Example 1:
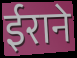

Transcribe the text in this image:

ईराने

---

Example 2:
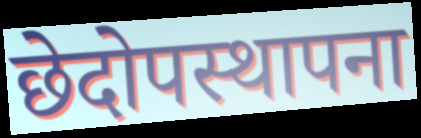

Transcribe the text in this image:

छेदोपस्थापना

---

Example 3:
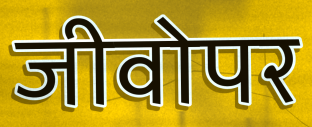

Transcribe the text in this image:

जीवोपर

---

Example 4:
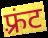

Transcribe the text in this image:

फ़्रंट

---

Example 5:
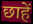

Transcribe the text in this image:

छाहें